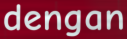
dengan